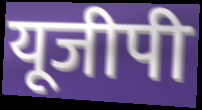
यूजीपी